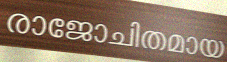
രാജോചിതമായ